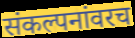
संकल्पनांवरच